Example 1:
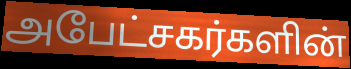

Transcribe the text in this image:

அபேட்சகர்களின்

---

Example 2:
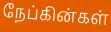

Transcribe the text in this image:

நேப்கின்கள்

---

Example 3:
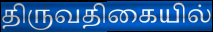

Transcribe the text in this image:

திருவதிகையில்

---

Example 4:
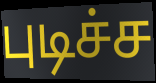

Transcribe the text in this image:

புடிச்ச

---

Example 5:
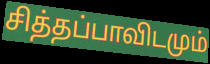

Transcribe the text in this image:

சித்தப்பாவிடமும்